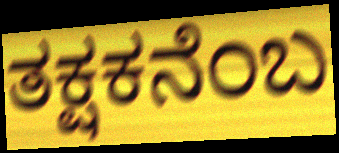
ತಕ್ಷಕನೆಂಬ